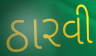
ઠારવી